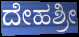
ದೇಹಶ್ರೀ